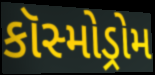
કૉસ્મોડ્રોમ